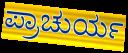
ಪ್ರಾಚುರ್ಯ